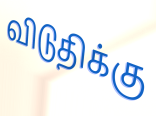
விடுதிக்கு